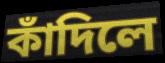
কাঁদিলে